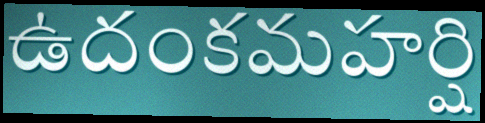
ఉదంకమహర్షి